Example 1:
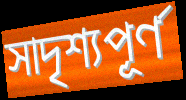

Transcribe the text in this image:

সাদৃশ্যপূর্ণ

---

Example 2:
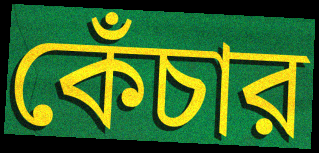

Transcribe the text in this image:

কেঁচার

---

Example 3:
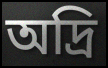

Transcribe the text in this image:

অদ্রি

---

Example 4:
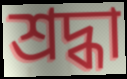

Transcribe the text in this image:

শ্রদ্ধা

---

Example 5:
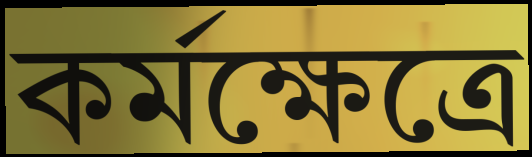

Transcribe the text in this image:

কর্মক্ষেত্রে